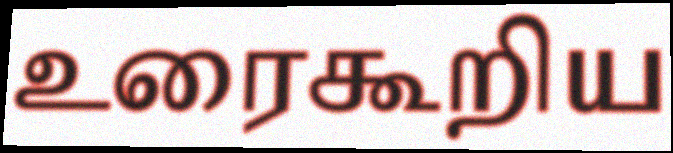
உரைகூறிய